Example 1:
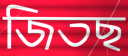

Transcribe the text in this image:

জিতছ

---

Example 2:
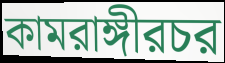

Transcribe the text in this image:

কামরাঙ্গীরচর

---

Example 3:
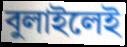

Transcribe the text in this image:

বুলাইলেই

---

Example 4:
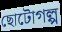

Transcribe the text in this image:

ছোটোগল্প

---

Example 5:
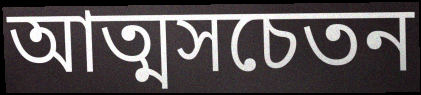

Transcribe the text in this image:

আত্মসচেতন